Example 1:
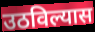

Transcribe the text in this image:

उठविल्यास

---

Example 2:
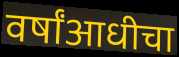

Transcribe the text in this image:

वर्षांआधीचा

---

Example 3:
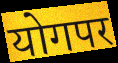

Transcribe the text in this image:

योगपर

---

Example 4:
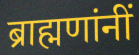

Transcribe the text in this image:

ब्राह्मणांनीं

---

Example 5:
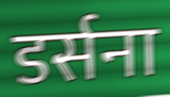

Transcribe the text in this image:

डर्सना